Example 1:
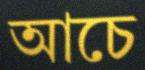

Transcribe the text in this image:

আচে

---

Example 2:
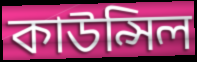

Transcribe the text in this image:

কাউন্সিল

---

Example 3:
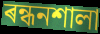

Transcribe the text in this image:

ৰন্ধনশালা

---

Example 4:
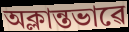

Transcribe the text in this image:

অক্লান্তভাৱে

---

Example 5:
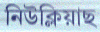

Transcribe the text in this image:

নিউক্লিয়াছ